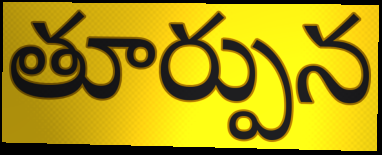
తూర్పున